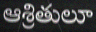
ఆశ్రితులూ